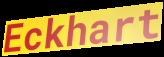
Eckhart